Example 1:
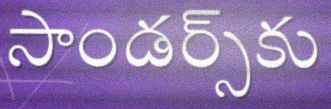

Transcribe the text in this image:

సాండర్స్‌కు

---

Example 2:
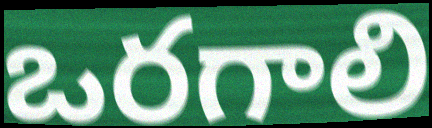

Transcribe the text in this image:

ఒరగాలి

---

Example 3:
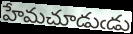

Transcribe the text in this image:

హేమచూడుఁడు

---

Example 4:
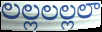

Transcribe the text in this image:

లల్లలల్లలా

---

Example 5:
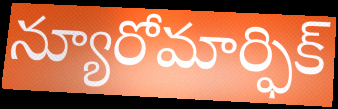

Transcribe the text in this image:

న్యూరోమార్ఫిక్